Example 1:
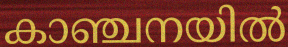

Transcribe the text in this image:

കാഞ്ചനയിൽ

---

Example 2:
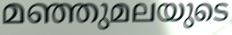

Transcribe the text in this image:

മഞ്ഞുമലയുടെ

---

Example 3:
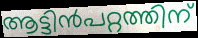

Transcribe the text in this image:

ആട്ടിൻപറ്റത്തിന്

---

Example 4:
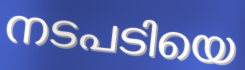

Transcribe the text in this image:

നടപടിയെ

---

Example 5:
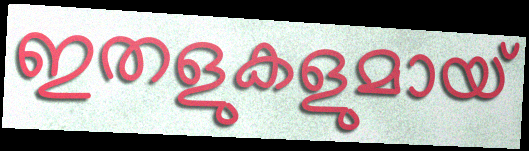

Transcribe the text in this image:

ഇതളുകളുമായ്